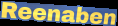
Reenaben